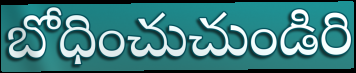
బోధించుచుండిరి